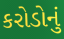
કરોડોનું